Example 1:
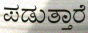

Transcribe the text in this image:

ಪಡುತ್ತಾರೆ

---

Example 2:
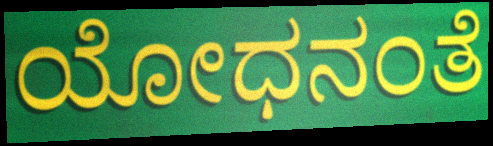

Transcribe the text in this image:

ಯೋಧನಂತೆ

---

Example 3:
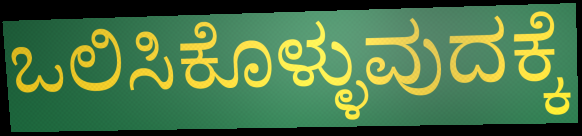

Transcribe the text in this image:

ಒಲಿಸಿಕೊಳ್ಳುವುದಕ್ಕೆ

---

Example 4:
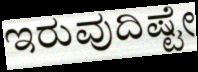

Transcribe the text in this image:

ಇರುವುದಿಷ್ಟೇ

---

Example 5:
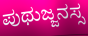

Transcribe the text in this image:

ಪುಥುಜ್ಜನಸ್ಸ